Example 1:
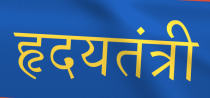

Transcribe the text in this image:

हृदयतंत्री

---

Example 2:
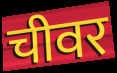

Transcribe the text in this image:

चीवर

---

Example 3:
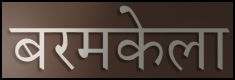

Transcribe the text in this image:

बरमकेला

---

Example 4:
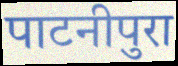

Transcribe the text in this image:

पाटनीपुरा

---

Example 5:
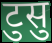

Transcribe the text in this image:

टुसु